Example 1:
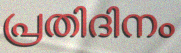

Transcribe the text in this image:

പ്രതിദിനം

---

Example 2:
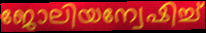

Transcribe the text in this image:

ജോലിയന്വേഷിച്ച്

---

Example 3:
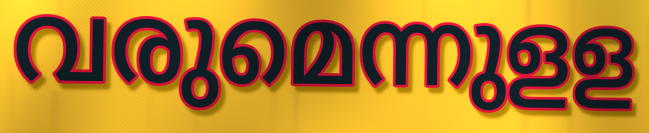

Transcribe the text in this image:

വരുമെന്നുളള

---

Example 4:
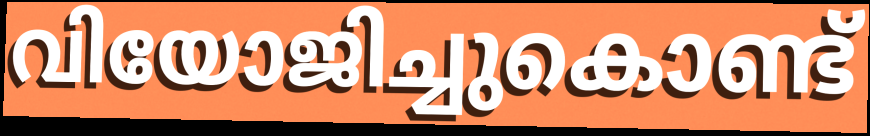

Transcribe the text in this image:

വിയോജിച്ചുകൊണ്ട്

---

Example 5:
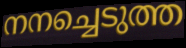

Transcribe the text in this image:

നനച്ചെടുത്ത